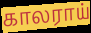
காலராய்